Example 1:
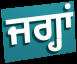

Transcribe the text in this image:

ਜਗ੍ਹਾਂ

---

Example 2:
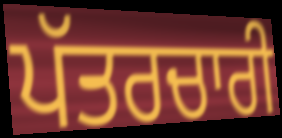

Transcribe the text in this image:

ਪੱਤਰਚਾਰੀ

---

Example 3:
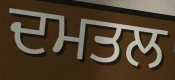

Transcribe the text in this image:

ਦਮਤਲ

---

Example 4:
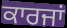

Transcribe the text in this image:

ਕਾਰਜਾਂ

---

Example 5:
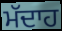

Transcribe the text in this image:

ਮੱਦਾਹ